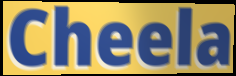
Cheela